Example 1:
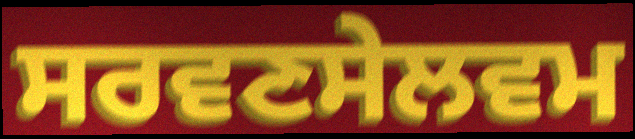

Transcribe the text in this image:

ਸਰਵਣਸੇਲਵਮ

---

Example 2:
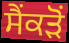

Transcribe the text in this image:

ਸੈਂਕੜੋਂ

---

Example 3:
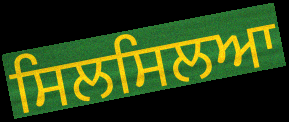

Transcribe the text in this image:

ਸਿਲਸਿਲਆ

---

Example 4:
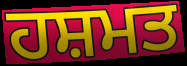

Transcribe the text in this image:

ਹਸ਼ਮਤ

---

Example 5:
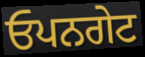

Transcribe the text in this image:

ਓਪਨਗੇਟ